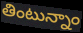
తింటున్నాం